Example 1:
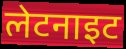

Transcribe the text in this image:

लेटनाइट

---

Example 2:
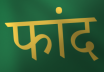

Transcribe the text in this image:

फांद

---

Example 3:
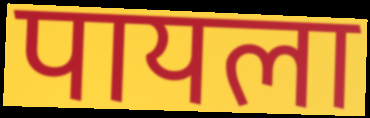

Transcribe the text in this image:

पायला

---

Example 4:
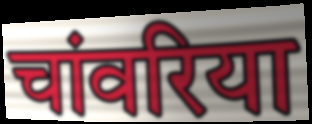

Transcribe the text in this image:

चांवरिया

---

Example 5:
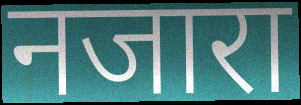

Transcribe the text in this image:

नजारा